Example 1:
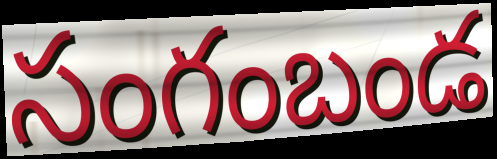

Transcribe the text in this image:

సంగంబండ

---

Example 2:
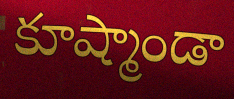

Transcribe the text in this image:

కూష్మాండా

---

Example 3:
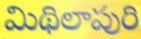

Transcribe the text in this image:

మిథిలాపురి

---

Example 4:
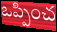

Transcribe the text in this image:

ఒప్పించ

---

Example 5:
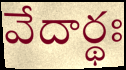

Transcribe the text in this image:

వేదార్థః